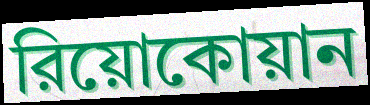
রিয়োকোয়ান